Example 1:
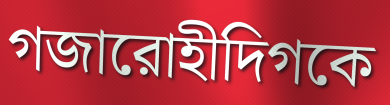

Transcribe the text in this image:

গজারোহীদিগকে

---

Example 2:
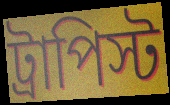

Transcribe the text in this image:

ট্রাপিস্ট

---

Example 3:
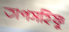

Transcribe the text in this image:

তাপসহিষ্ণু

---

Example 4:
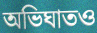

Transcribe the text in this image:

অভিঘাতও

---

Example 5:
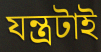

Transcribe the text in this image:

যন্ত্রটাই